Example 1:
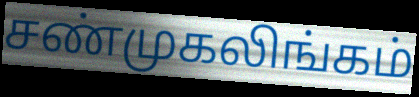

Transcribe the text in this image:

சண்முகலிங்கம்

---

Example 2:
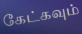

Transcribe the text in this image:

கேட்கவும்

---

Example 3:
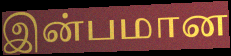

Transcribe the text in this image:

இன்பமான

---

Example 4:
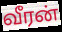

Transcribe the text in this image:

வீரன்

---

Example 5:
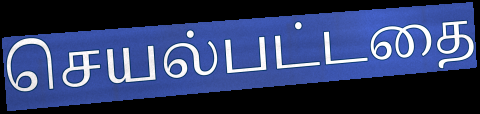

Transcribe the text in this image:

செயல்பட்டதை